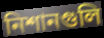
নিশানগুলি